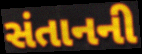
સંતાનની